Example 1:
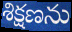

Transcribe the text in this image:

శిక్షణను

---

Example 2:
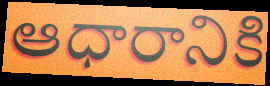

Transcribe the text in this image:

ఆధారానికి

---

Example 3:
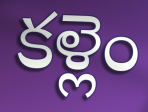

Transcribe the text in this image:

కళ్లెం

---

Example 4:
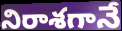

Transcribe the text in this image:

నిరాశగానే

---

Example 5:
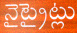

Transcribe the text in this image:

నైట్రైట్లు